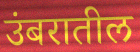
उंबरातील